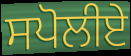
ਸਪੋਲੀਏ